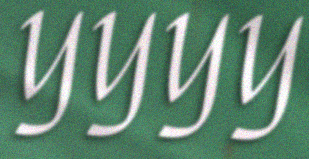
yyyy